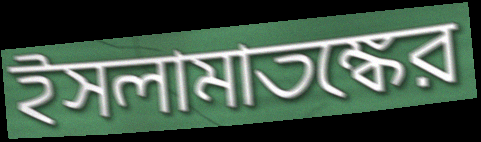
ইসলামাতঙ্কের